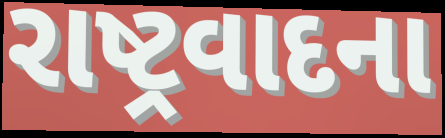
રાષ્ટ્રવાદના